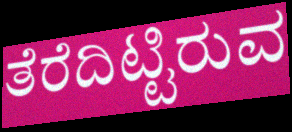
ತೆರೆದಿಟ್ಟಿರುವ